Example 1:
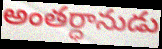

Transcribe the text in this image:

అంతర్ధానుడు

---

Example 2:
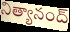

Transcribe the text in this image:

నిత్యానంద్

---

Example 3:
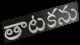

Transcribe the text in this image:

తాటకను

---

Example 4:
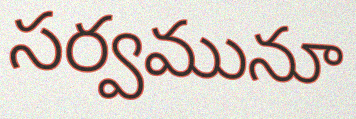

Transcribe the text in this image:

సర్వమునూ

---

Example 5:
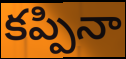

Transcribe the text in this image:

కప్పినా